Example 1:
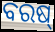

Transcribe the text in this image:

ବରଷ୍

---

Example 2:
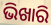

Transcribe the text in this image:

ଭିଖାରି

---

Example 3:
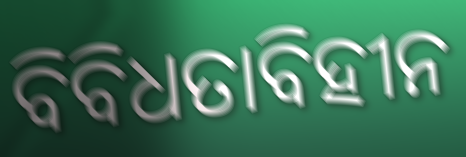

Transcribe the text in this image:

ବିବିଧତାବିହୀନ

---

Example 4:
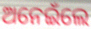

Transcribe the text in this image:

ଅନେଇଁଲେ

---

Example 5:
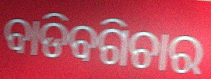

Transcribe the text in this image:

ବାଡିବଗିଚାର